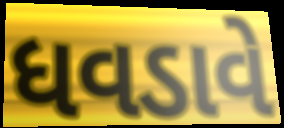
ધવડાવે